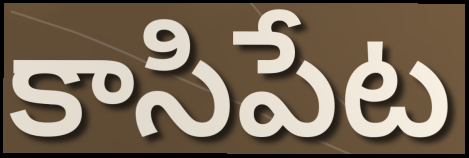
కాసిపేట